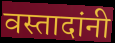
वस्तादांनी